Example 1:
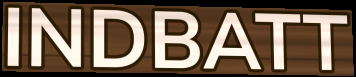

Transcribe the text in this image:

INDBATT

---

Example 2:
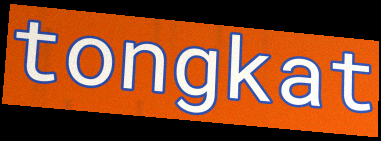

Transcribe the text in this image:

tongkat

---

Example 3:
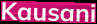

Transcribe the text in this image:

Kausani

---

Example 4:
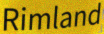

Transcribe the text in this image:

Rimland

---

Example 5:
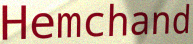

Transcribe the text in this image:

Hemchand